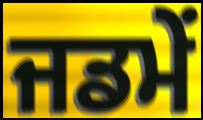
ਜਡਮੇਂ